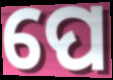
ପେ